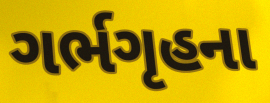
ગર્ભગૃહના